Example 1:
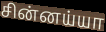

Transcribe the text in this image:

சின்னய்யா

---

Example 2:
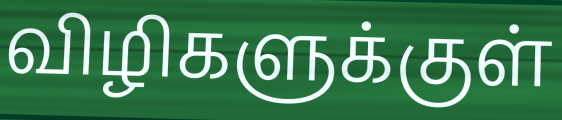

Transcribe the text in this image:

விழிகளுக்குள்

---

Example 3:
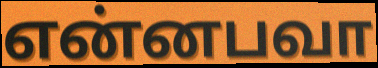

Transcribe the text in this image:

என்னபவா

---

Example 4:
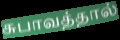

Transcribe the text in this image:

சுபாவத்தால்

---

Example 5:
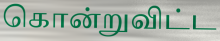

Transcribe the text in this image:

கொன்றுவிட்ட